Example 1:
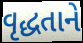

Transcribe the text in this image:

વૃદ્ધતાને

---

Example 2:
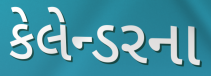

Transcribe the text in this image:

કેલેન્ડરના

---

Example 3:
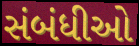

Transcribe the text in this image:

સંબંધીઓ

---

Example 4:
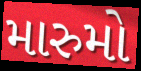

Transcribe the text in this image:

મારુમો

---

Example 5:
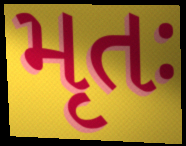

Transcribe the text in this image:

મૃતઃ